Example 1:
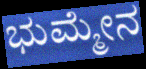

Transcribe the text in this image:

ಭುಮ್ಮೇನ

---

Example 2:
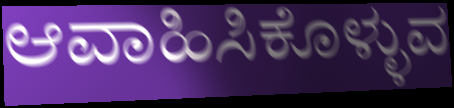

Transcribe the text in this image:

ಆವಾಹಿಸಿಕೊಳ್ಳುವ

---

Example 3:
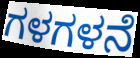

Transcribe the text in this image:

ಗಳಗಳನೆ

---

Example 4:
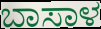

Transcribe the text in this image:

ಬಾಸಾಳ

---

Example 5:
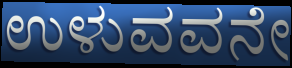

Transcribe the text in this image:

ಉಳುವವನೇ